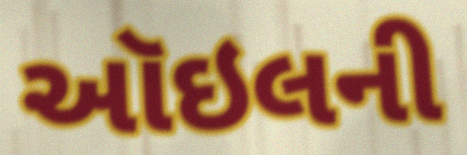
ઑઇલની